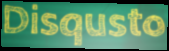
Disqusto